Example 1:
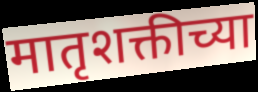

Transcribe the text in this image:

मातृशक्तीच्या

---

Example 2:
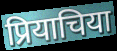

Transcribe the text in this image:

प्रियाचिया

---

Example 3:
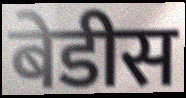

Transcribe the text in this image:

बेडीस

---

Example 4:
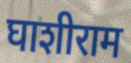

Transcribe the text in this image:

घाशीराम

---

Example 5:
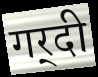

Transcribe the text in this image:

गर्दी